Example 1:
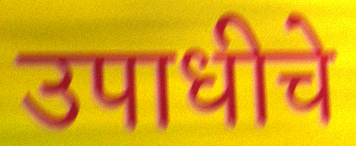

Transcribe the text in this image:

उपाधीचे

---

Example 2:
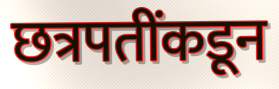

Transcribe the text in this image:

छत्रपतींकडून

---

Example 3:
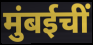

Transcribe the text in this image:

मुंबईचीं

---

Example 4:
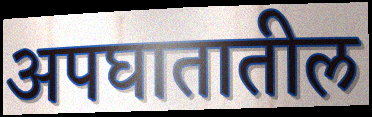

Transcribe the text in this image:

अपघातातील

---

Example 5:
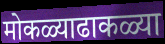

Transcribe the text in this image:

मोकळ्याढाकळ्या